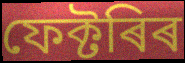
ফেক্টৰিৰ